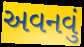
અવનવું